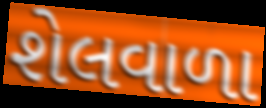
શેલવાળા